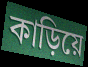
কাড়িয়ে